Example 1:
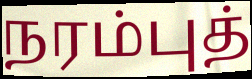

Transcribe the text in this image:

நரம்புத்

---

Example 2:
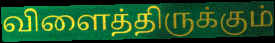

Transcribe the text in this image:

விளைத்திருக்கும்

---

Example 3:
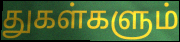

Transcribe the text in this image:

துகள்களும்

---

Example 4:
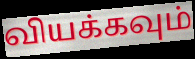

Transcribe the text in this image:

வியக்கவும்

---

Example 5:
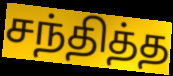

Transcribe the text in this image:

சந்தித்த